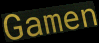
Gamen